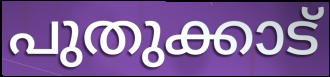
പുതുക്കാട്